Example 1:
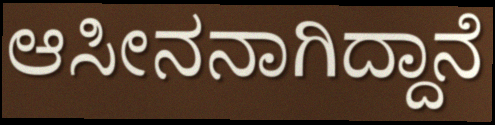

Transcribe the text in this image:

ಆಸೀನನಾಗಿದ್ದಾನೆ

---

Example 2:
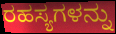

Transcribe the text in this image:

ರಹಸ್ಯಗಳನ್ನು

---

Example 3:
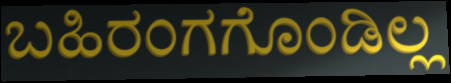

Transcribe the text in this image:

ಬಹಿರಂಗಗೊಂಡಿಲ್ಲ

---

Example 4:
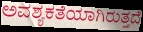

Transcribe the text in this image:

ಅವಶ್ಯಕತೆಯಾಗಿರುತ್ತದೆ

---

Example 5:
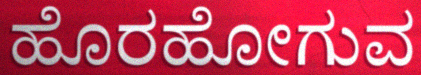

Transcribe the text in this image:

ಹೊರಹೋಗುವ